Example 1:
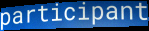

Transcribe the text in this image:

participant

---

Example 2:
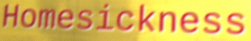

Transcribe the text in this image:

Homesickness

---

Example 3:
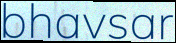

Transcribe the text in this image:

bhavsar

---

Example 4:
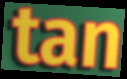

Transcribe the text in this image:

tan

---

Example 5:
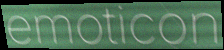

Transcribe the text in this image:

emoticon